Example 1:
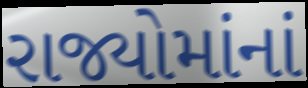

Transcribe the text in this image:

રાજ્યોમાંનાં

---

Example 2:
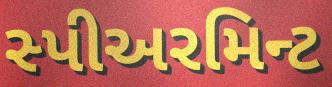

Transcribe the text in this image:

સ્પીઅરમિન્ટ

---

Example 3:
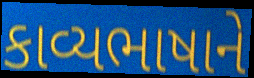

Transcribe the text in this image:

કાવ્યભાષાને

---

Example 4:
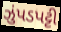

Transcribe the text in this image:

ઝુંપડપટ્ટી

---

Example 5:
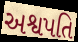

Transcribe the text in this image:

અશ્વપતિ